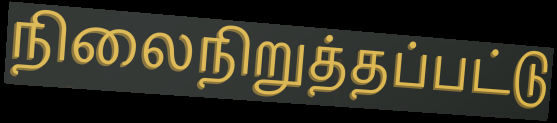
நிலைநிறுத்தப்பட்டு